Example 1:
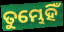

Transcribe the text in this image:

ତୁମ୍ଭେହିଁ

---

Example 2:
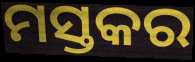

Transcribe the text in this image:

ମସ୍ତକର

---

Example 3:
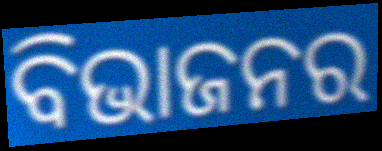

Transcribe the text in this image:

ବିଭାଜନର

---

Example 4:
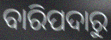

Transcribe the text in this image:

ବାରିପଦାରୁ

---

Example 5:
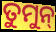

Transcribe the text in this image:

ତୁମୁନ୍